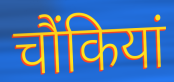
चौंकियां